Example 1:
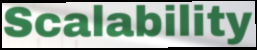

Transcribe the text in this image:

Scalability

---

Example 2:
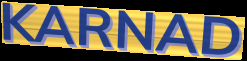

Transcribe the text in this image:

KARNAD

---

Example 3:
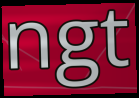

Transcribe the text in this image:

ngt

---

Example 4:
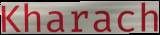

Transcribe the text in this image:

Kharach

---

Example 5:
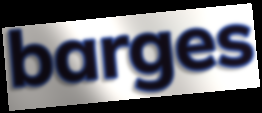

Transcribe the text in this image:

barges